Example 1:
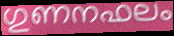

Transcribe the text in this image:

ഗുണനഫലം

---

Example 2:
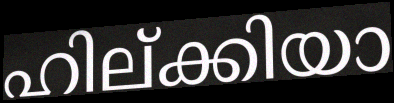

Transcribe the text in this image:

ഹില്ക്കിയാ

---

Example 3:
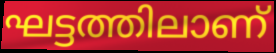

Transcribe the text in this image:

ഘട്ടത്തിലാണ്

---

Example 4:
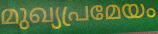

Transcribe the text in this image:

മുഖ്യപ്രമേയം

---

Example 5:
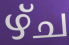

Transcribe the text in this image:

ഴ്ച